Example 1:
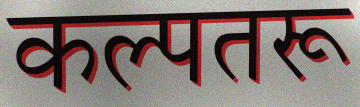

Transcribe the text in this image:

कल्पतरू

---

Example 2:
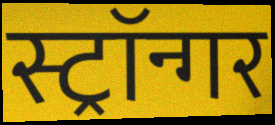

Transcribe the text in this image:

स्ट्रॉन्गर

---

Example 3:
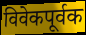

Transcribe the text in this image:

विवेकपूर्वक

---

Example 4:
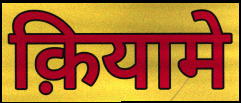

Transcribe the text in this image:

क़ियामे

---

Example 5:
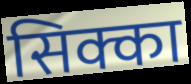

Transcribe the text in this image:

सिक्का